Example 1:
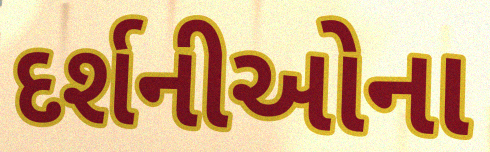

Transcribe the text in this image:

દર્શનીઓના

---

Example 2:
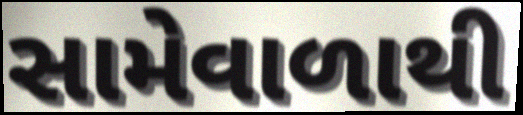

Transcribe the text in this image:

સામેવાળાથી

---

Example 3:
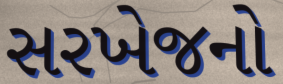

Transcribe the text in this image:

સરખેજનો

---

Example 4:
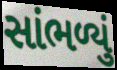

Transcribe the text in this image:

સાંભળ્યું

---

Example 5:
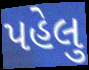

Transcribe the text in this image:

પહેલુ